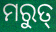
ମରୁତ୍